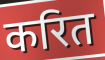
करित